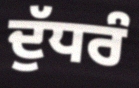
ਦੁੱਧਰੰ